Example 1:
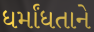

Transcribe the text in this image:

ધર્માંધતાને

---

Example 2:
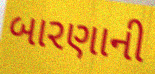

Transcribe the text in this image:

બારણાની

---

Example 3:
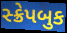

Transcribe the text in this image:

સ્ક્રેપબુક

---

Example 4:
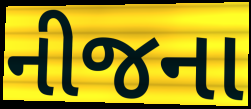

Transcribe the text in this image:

નીજના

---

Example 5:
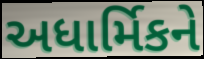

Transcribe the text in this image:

અધાર્મિકને